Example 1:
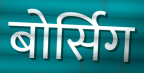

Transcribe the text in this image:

बोर्सिग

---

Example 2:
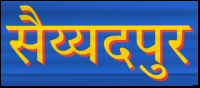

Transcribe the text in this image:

सैय्यदपुर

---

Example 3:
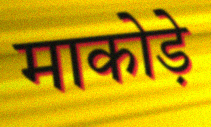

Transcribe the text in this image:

माकोड़े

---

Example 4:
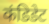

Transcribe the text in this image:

कंडिडेट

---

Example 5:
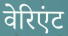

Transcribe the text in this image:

वेरिएंट